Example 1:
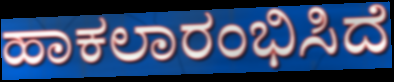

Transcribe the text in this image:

ಹಾಕಲಾರಂಭಿಸಿದೆ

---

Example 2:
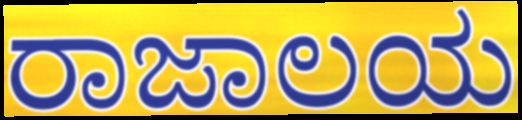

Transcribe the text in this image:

ರಾಜಾಲಯ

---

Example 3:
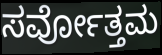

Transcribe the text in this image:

ಸರ್ವೋತ್ತಮ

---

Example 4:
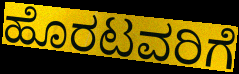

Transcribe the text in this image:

ಹೊರಟವರಿಗೆ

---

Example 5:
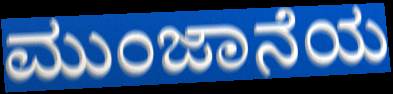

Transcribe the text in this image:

ಮುಂಜಾನೆಯ